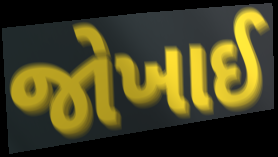
જોખાઈ